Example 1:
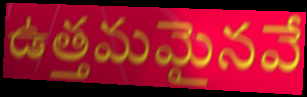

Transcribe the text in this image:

ఉత్తమమైనవే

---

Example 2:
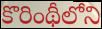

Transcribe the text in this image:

కొరింథీలోని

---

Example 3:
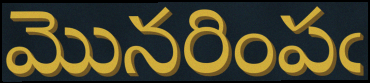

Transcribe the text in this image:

మొనరింపఁ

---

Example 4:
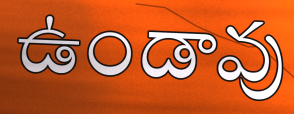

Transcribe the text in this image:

ఉండావు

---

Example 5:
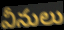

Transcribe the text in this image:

వీనులు